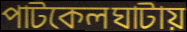
পাটকেলঘাটায়